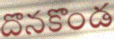
దొనకొండ